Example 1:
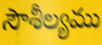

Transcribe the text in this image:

సౌశీల్యము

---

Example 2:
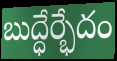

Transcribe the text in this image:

బుద్ధేర్భేదం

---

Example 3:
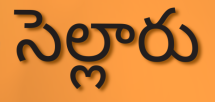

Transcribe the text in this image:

సెల్లారు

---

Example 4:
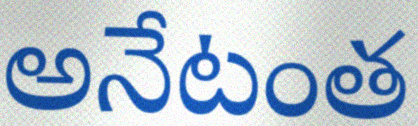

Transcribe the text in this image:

అనేటంత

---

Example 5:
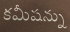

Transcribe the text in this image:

కమీషన్ను